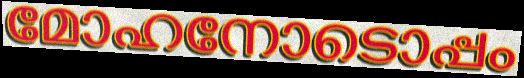
മോഹനോടൊപ്പം